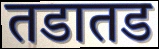
तडातड